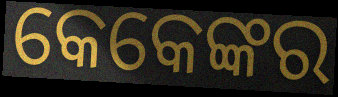
କେକେଙ୍କର